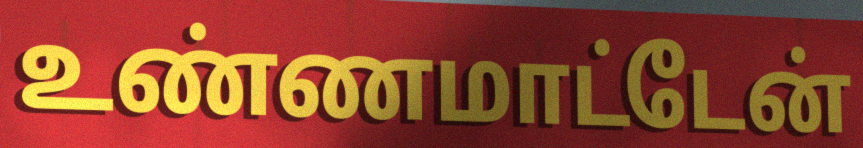
உண்ணமாட்டேன்